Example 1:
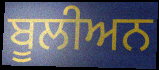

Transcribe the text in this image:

ਬੂਲੀਅਨ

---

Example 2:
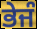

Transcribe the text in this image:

ਭੇਜੰ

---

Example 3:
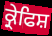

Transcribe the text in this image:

ਕ੍ਰੇਫਿਸ਼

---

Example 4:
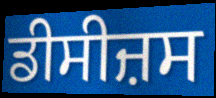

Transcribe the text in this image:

ਡੀਸੀਜ਼ਸ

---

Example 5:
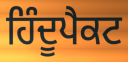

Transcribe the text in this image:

ਹਿੰਦੂਪੈਕਟ